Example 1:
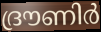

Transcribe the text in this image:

ദ്രൗണിർ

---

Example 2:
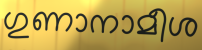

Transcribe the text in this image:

ഗുണാനാമീശ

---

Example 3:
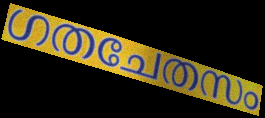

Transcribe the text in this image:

ഗതചേതസം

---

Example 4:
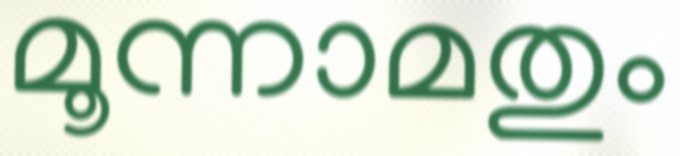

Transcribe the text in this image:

മൂന്നാമതും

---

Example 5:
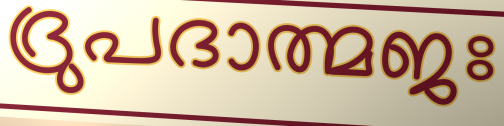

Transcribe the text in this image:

ദ്രുപദാത്മജഃ